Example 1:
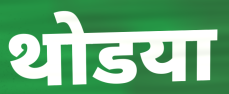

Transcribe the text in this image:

थोडया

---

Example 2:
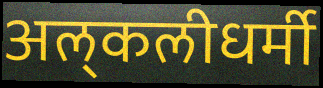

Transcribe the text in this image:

अल्कलीधर्मी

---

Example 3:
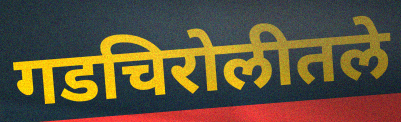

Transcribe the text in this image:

गडचिरोलीतले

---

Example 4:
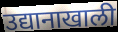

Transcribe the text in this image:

उद्यानाखाली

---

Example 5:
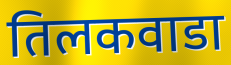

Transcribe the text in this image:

तिलकवाडा